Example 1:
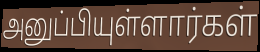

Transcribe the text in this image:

அனுப்பியுள்ளார்கள்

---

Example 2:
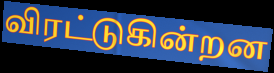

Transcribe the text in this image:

விரட்டுகின்றன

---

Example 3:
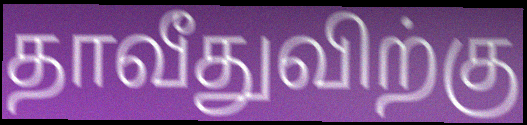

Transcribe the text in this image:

தாவீதுவிற்கு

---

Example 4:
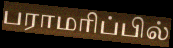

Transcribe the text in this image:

பராமரிப்பில்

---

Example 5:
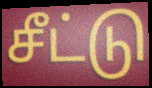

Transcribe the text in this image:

சீட்டு